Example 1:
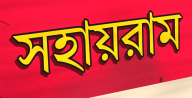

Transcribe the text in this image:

সহায়রাম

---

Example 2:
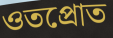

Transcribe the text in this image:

ওতপ্রোত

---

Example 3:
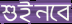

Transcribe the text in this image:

শুইনবে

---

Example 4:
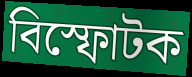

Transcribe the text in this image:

বিস্ফোটক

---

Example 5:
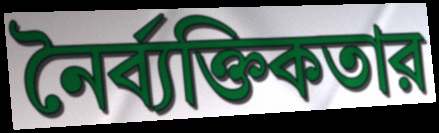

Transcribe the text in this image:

নৈর্ব্যক্তিকতার